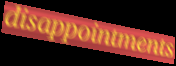
disappointments